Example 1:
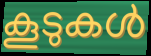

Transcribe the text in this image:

കൂടുകൾ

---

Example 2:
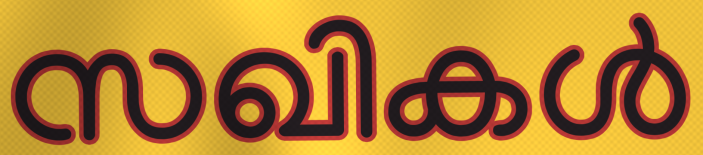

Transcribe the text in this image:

സഖികൾ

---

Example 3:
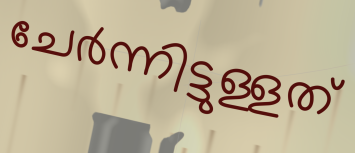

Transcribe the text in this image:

ചേർന്നിട്ടുള്ളത്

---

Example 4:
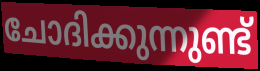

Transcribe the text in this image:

ചോദിക്കുന്നുണ്ട്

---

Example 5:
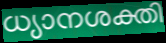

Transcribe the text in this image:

ധ്യാനശക്തി